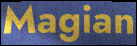
Magian